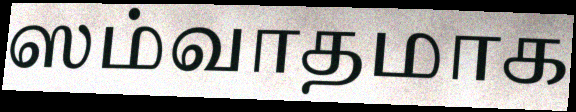
ஸம்வாதமாக